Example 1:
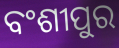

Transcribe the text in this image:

ବଂଶୀପୁର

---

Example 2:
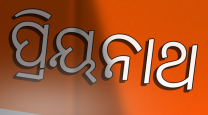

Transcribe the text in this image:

ପ୍ରିୟନାଥ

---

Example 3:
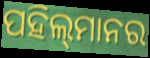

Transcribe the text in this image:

ପହିଲ୍‌ମାନର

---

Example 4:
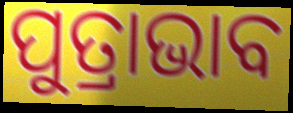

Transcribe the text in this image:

ପୁତ୍ରାଭାବ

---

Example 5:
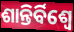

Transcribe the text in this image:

ଶାନ୍ତିର୍ବିଶ୍ୱେ